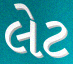
લેટ